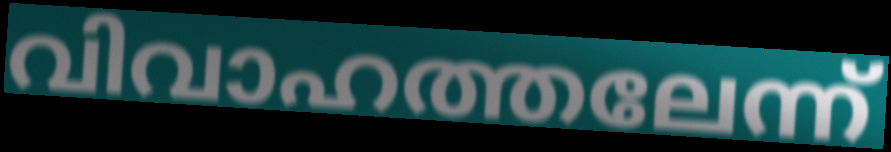
വിവാഹത്തലേന്ന്